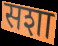
सशा